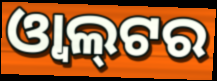
ଓ୍ୱାଲ୍‍ଟର